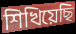
শিখিয়েছি